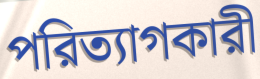
পরিত্যাগকারী